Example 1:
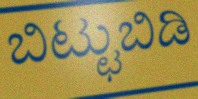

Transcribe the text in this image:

ಬಿಟ್ಟುಬಿಡಿ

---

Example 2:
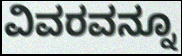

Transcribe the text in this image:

ವಿವರವನ್ನೂ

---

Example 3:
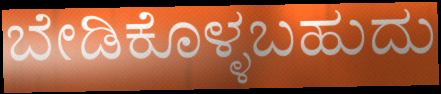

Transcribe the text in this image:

ಬೇಡಿಕೊಳ್ಳಬಹುದು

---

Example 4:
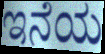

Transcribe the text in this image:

ಇನೆಯ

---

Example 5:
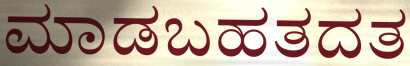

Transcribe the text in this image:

ಮಾಡಬಹತದತ